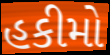
હકીમો